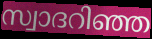
സ്വാദറിഞ്ഞ